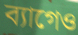
ব্যাগেও